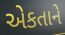
એકતાને